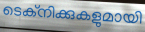
ടെക്നിക്കുകളുമായി